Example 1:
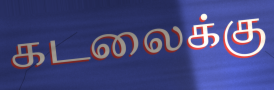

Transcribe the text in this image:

கடலைக்கு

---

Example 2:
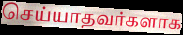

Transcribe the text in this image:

செய்யாதவர்களாக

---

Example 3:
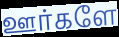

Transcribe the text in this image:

ஊர்களே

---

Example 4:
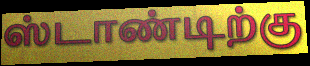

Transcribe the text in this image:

ஸ்டாண்டிற்கு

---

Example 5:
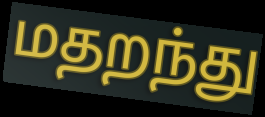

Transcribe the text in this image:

மதறந்து